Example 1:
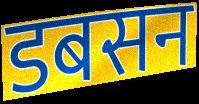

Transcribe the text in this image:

डबसन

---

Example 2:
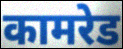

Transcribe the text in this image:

कामरेड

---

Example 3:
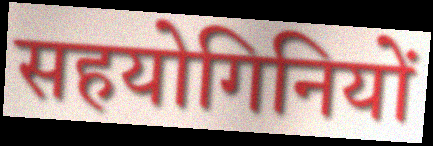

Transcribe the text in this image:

सहयोगिनियों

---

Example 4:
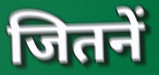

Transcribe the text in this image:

जितनें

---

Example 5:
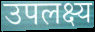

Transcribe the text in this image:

उपलक्ष्य